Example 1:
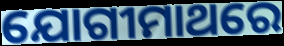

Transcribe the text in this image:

ଯୋଗୀମାଥରେ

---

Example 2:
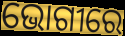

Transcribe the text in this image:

ଭୋଗୀରେ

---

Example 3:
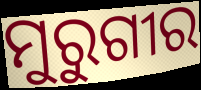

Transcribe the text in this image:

ମୁରୁଗୀର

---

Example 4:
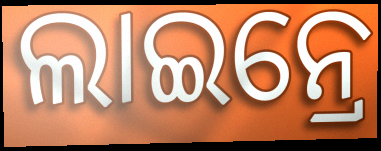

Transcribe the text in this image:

ଲାଇନ୍ରେ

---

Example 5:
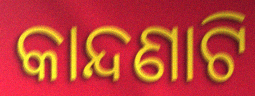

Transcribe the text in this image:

କାନ୍ଦଣାଟି